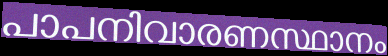
പാപനിവാരണസ്ഥാനം